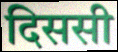
दिससी